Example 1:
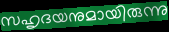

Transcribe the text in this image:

സഹൃദയനുമായിരുന്നു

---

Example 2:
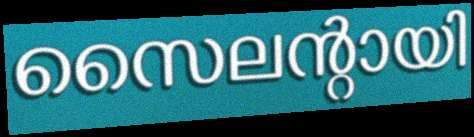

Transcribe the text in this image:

സൈലന്റായി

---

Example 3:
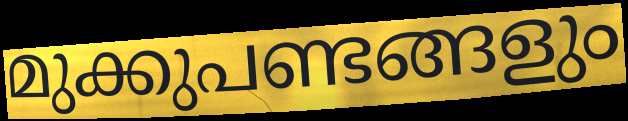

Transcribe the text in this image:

മുക്കുപണ്ടങ്ങളും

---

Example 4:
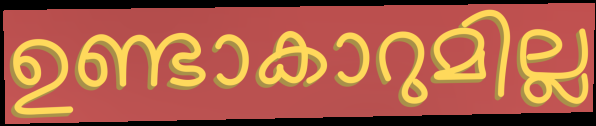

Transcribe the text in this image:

ഉണ്ടാകാറുമില്ല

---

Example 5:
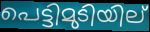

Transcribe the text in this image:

പെട്ടിമുടിയില്